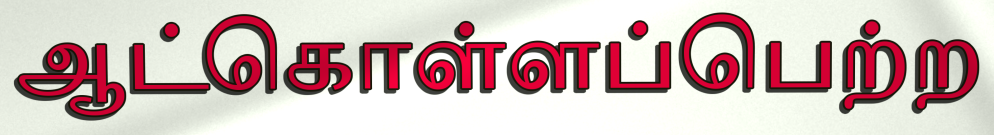
ஆட்கொள்ளப்பெற்ற